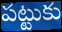
పట్టుకు